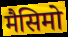
मैसिमो